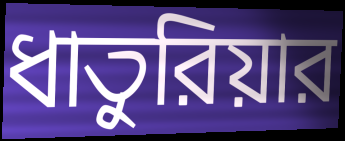
ধাতুরিয়ার